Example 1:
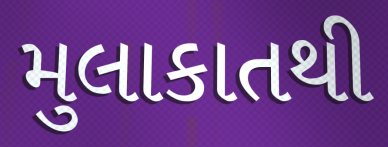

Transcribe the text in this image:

મુલાકાતથી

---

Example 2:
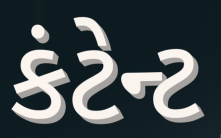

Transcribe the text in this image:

કંટેન્ટ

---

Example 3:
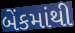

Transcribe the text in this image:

બેંકમાંથી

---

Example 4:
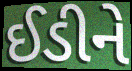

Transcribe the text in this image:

ઈડીને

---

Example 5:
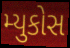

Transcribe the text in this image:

મ્યુકોસ